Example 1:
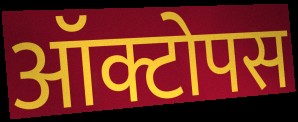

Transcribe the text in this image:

ऑक्टोपस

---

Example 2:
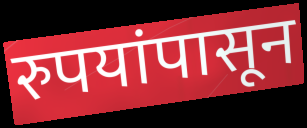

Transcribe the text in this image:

रुपयांपासून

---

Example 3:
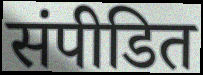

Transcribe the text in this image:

संपीडित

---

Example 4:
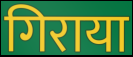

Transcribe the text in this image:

गिराया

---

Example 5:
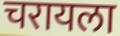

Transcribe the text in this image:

चरायला